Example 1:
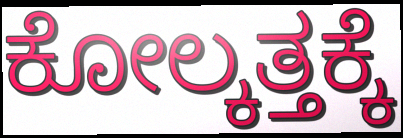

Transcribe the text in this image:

ಕೋಲ್ಕತ್ತಕ್ಕೆ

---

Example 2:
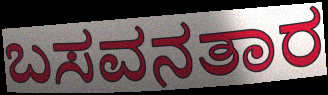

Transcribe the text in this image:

ಬಸವನತಾರ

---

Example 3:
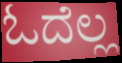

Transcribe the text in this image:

ಓದೆಲ್ಲ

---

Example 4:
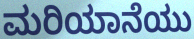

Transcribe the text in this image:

ಮರಿಯಾನೆಯು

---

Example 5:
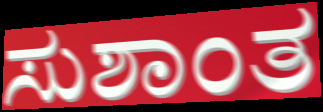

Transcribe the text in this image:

ಸುಶಾಂತ